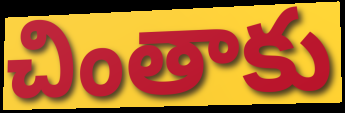
చింతాకు